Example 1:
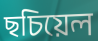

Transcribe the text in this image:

ছচিয়েল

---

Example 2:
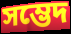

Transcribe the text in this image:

সম্ভেদ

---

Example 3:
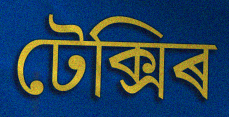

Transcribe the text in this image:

টেক্সিৰ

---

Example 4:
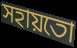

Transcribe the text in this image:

সহায়তো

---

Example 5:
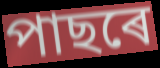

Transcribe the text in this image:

পাছৰে